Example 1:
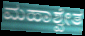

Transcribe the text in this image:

ಮಹಾಶ್ವೇತ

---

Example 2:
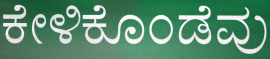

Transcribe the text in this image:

ಕೇಳಿಕೊಂಡೆವು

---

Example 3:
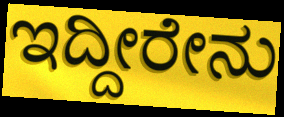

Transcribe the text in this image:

ಇದ್ದೀರೇನು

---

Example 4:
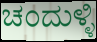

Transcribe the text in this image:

ಚಂದುಳ್ಳಿ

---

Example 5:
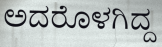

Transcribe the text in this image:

ಅದರೊಳಗಿದ್ದ